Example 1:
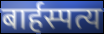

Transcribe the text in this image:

बार्हस्पत्य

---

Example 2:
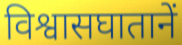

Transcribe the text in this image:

विश्वासघातानें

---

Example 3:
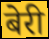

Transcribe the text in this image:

बेरी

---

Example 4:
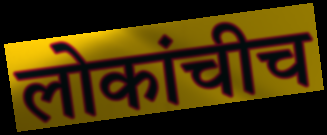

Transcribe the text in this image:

लोकांचीच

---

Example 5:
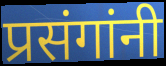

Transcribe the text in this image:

प्रसंगांनी